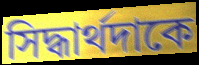
সিদ্ধার্থদাকে